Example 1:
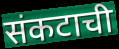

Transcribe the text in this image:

संकटाची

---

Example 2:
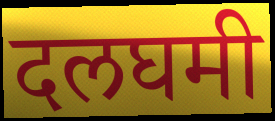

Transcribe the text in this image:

दलघमी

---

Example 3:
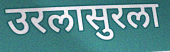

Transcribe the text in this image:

उरलासुरला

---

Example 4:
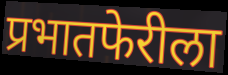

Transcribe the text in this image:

प्रभातफेरीला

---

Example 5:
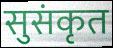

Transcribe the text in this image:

सुसंकृत